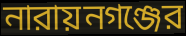
নারায়নগঞ্জের